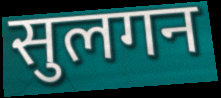
सुलगन